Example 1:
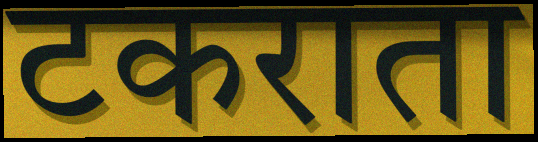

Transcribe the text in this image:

टकराता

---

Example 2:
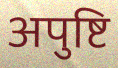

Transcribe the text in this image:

अपुष्टि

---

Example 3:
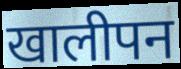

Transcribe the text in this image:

खालीपन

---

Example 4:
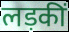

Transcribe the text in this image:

लड़कीं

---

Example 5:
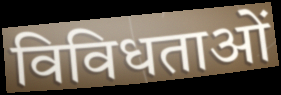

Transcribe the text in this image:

विविधताओं